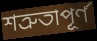
শত্রুতাপূর্ণ